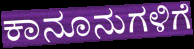
ಕಾನೂನುಗಳಿಗೆ